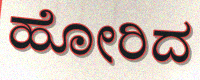
ಹೋರಿದ